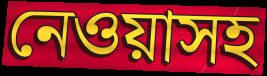
নেওয়াসহ